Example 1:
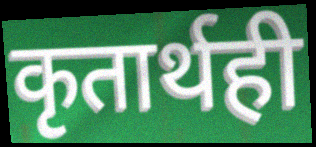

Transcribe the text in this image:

कृतार्थही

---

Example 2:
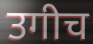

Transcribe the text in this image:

उगीच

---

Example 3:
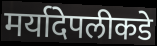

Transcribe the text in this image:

मर्यादेपलीकडे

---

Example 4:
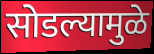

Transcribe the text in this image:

सोडल्यामुळे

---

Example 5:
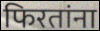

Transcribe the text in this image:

फिरतांना